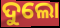
ଦୁଲୋ